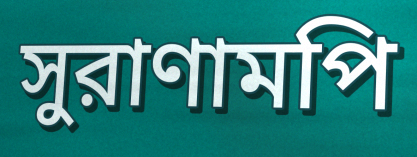
সুরাণামপি